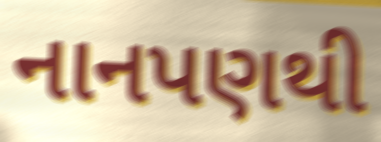
નાનપણથી